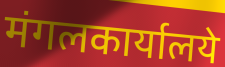
मंगलकार्यालये